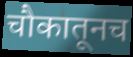
चौकातूनच